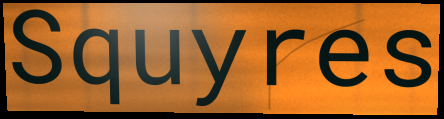
Squyres